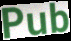
Pub